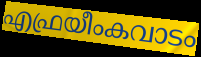
എഫ്രയീംകവാടം